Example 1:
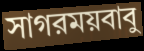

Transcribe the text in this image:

সাগরময়বাবু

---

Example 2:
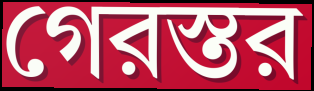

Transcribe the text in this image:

গেরস্তর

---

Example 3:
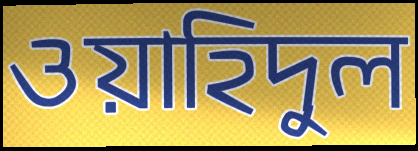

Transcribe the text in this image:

ওয়াহিদুল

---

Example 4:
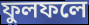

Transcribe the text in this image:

ফুলফলে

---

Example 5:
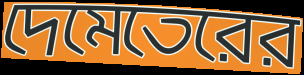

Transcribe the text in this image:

দেমেতেরের